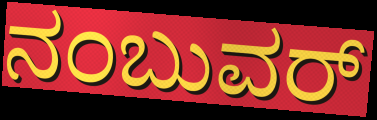
ನಂಬುವರ್